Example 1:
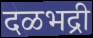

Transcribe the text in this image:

दळभद्री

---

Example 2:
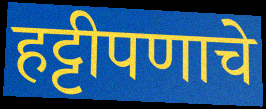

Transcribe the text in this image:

हट्टीपणाचे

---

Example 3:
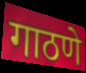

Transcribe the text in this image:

गाठणे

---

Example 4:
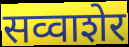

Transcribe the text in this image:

सव्वाशेर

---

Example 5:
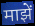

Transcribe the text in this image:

माझें